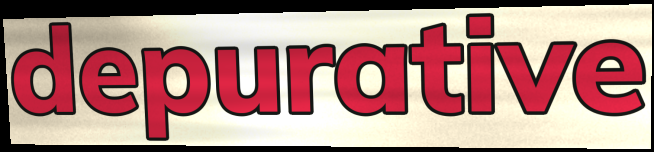
depurative